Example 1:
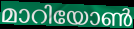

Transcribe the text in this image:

മാറിയോൺ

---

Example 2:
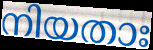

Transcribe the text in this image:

നിയതാഃ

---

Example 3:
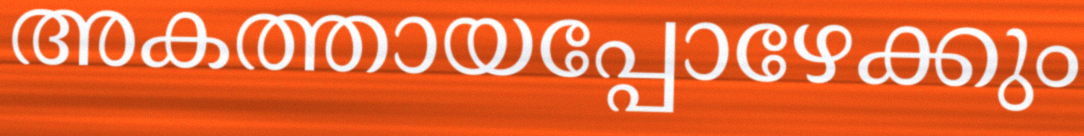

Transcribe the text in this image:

അകത്തായപ്പോഴേക്കും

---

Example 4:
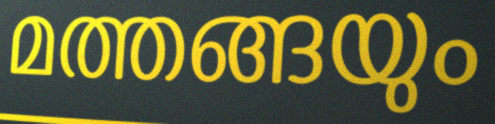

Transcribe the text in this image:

മത്തങ്ങയും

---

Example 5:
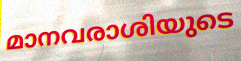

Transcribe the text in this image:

മാനവരാശിയുടെ